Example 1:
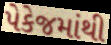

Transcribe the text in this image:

પેકેજમાંથી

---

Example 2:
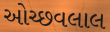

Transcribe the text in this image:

ઓચ્છવલાલ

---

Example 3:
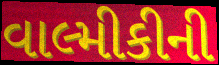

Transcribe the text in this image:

વાલ્મીકીની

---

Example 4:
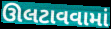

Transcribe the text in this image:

ઊલટાવવામાં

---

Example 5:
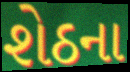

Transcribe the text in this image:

શેઠના